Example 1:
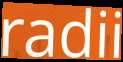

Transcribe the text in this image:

radii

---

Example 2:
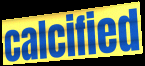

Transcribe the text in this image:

calcified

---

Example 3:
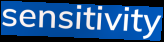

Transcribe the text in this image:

sensitivity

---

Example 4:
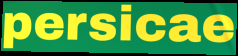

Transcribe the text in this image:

persicae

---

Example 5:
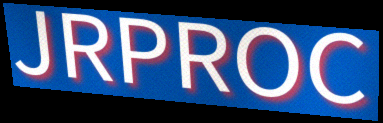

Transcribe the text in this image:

JRPROC